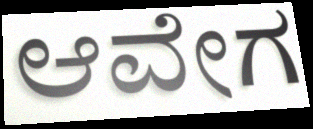
ಆವೇಗ